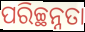
ପରିଚ୍ଛନ୍ନତା